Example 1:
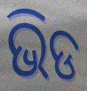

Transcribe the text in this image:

ଭିଡ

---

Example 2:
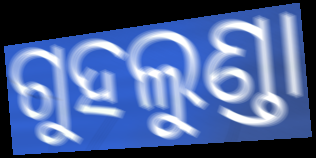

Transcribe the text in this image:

ଗୁହଲୁଣ୍ଡା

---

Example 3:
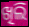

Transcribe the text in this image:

ଖିଲି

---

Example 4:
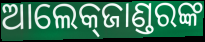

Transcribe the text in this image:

ଆଲେକ୍‌ଜାଣ୍ଡରଙ୍କ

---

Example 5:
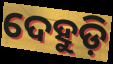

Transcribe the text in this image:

ଦେହୁଡ଼ି